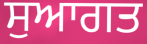
ਸੁਆਗਤ